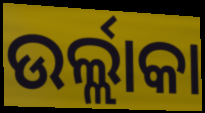
ଉର୍ଲ୍ଲାକା